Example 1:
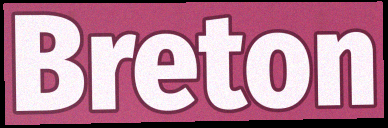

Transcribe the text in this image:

Breton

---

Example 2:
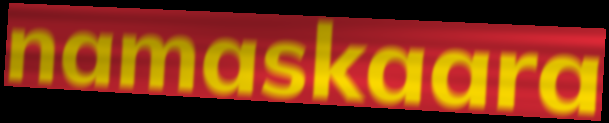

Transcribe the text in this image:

namaskaara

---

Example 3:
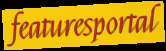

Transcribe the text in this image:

featuresportal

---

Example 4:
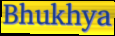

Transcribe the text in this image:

Bhukhya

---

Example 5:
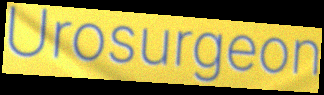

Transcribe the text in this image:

Urosurgeon